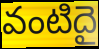
వంటిదై